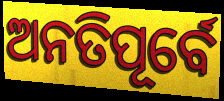
ଅନତିପୂର୍ବେ